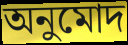
অনুমোদ